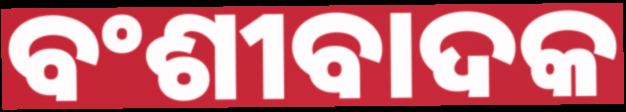
ବଂଶୀବାଦକ